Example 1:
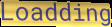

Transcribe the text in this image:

Loadding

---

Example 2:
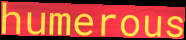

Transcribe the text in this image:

humerous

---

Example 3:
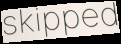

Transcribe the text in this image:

skipped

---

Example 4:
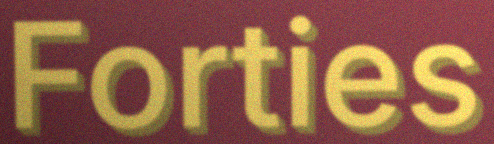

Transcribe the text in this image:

Forties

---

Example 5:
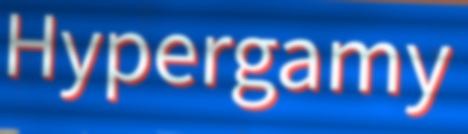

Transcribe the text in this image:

Hypergamy